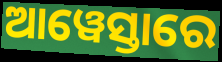
ଆୱେସ୍ତାରେ